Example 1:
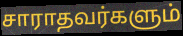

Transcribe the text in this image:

சாராதவர்களும்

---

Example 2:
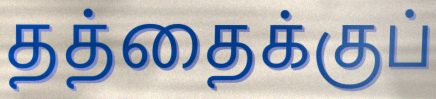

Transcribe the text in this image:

தத்தைக்குப்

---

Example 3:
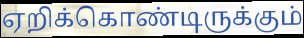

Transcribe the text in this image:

ஏறிக்கொண்டிருக்கும்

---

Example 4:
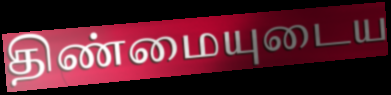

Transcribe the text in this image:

திண்மையுடைய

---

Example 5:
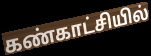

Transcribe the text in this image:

கண்காட்சியில்